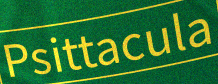
Psittacula